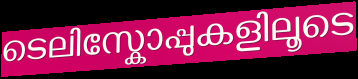
ടെലിസ്കോപ്പുകളിലൂടെ